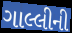
ગાલ્લીની